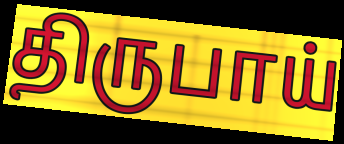
திருபாய்